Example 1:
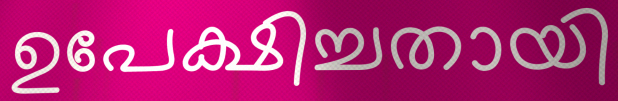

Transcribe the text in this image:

ഉപേക്ഷിച്ചതായി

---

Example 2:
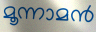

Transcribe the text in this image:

മൂന്നാമൻ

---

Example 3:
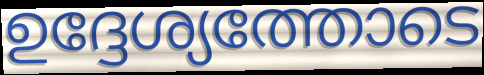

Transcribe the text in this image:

ഉദ്ദേശ്യത്തോടെ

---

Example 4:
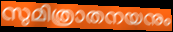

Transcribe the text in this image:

സുമിത്രാതനയനും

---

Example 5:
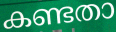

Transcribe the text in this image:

കണ്ടതാ